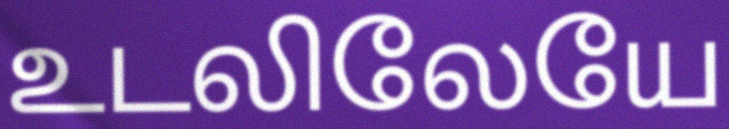
உடலிலேயே